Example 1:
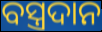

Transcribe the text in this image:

ବସ୍ତ୍ରଦାନ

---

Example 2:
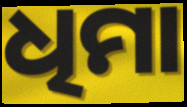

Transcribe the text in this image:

ଧିମା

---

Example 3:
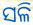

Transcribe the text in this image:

ସଳି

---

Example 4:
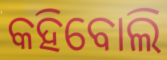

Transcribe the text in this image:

କହିବୋଲି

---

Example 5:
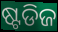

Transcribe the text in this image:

ଷ୍ଟଡିଜ